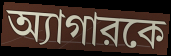
অ্যাগারকে